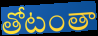
తోటంతా